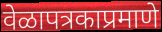
वेळापत्रकाप्रमाणे